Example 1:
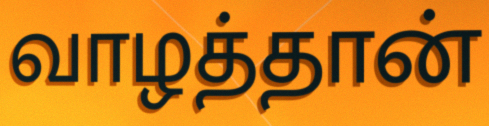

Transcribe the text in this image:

வாழத்தான்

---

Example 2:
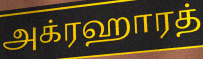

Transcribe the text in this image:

அக்ரஹாரத்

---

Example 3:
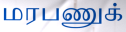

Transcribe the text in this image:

மரபணுக்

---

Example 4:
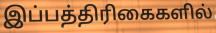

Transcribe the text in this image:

இப்பத்திரிகைகளில்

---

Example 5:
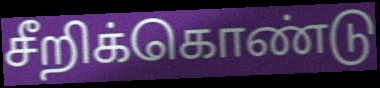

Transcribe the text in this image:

சீறிக்கொண்டு